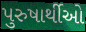
પુરુષાર્થીઓ